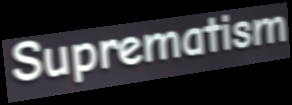
Suprematism